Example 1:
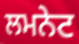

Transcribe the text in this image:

ਲਮਨੇਟ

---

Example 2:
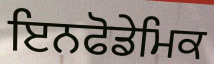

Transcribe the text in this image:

ਇਨਫੋਡੇਮਿਕ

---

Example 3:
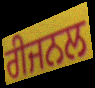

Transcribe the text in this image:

ਰੀਜਨਲ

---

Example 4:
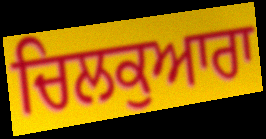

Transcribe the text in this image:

ਚਿਲਕੁਆਰਾ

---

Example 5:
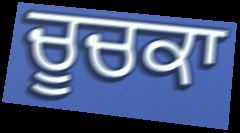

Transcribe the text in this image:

ਚੂਚਕਾ